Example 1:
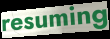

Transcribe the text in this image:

resuming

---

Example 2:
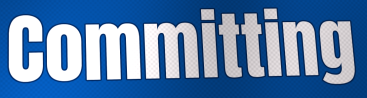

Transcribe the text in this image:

Committing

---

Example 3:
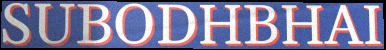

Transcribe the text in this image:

SUBODHBHAI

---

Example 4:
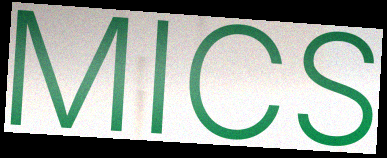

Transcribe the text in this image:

MICS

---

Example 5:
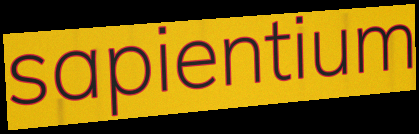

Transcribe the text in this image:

sapientium